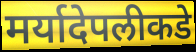
मर्यादेपलीकडे